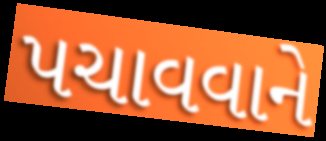
પચાવવાને